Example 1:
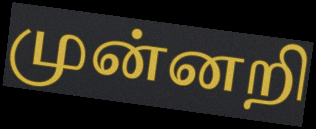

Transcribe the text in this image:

முன்னறி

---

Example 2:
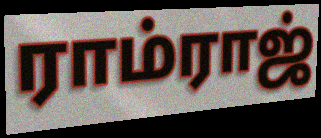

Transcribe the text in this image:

ராம்ராஜ்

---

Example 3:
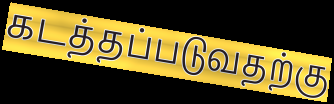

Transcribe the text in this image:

கடத்தப்படுவதற்கு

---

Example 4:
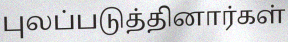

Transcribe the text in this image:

புலப்படுத்தினார்கள்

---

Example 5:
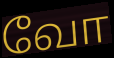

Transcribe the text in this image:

வோ